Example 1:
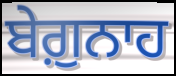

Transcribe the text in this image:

ਬੇਗ਼ੁਨਾਹ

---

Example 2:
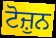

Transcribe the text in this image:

ਟੋਜ਼ੁਨ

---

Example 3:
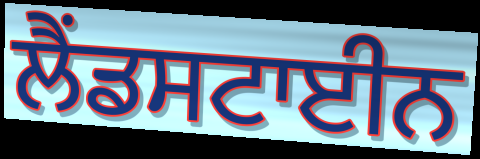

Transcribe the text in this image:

ਲੈਂਡਸਟਾਈਨ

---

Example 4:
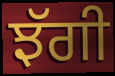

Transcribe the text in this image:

ਝੱਗੀ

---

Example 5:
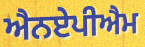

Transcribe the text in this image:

ਐਨਏਪੀਐਮ